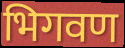
भिगवण